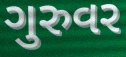
ગુરુવર